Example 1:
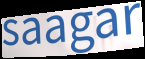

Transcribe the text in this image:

saagar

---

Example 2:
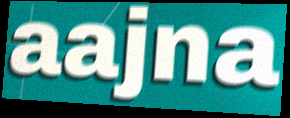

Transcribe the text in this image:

aajna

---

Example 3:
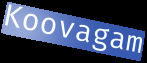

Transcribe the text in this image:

Koovagam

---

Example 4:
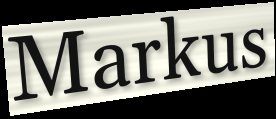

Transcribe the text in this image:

Markus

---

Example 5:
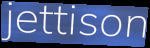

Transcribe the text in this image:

jettison